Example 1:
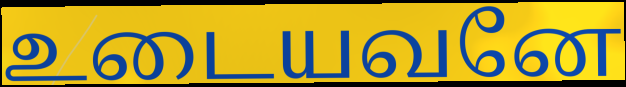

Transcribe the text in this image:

உடையவனே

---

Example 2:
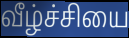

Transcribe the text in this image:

வீழ்ச்சியை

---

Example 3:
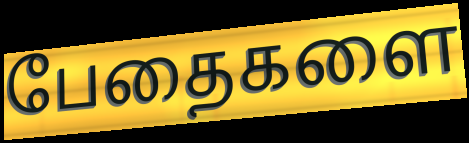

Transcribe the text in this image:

பேதைகளை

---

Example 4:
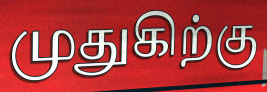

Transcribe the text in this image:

முதுகிற்கு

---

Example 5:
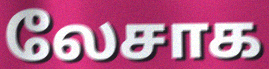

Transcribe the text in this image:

லேசாக